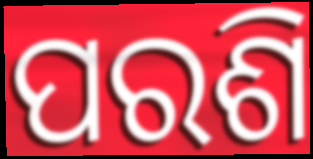
ପରଶି